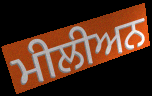
ਮੀਲੀਅਨ